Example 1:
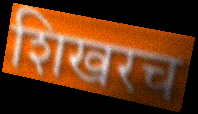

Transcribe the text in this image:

शिखरच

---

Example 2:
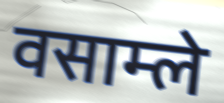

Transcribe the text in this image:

वसाम्ले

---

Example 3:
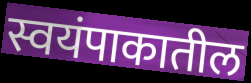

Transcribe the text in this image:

स्वयंपाकातील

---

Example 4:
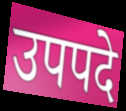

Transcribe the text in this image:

उपपदे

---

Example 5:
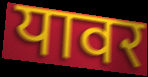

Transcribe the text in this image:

यावर